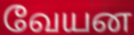
வேயன